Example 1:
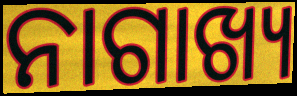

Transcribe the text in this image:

ନାଗାଖ୍ୟ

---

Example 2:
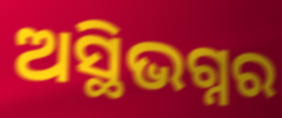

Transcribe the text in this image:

ଅସ୍ଥିଭଗ୍ନର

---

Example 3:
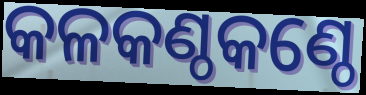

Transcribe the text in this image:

କଳକଣ୍ଠକଣ୍ଠେ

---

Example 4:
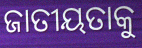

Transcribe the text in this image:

ଜାତୀୟତାକୁ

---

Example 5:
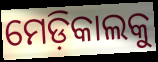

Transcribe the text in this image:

ମେଡ଼ିକାଲକୁ